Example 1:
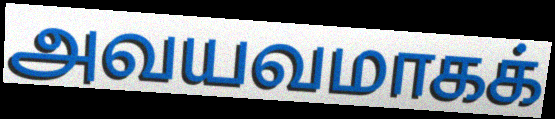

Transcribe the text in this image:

அவயவமாகக்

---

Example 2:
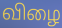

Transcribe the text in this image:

விழை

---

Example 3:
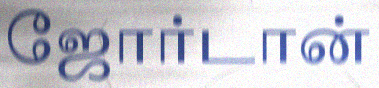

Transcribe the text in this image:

ஜோர்டான்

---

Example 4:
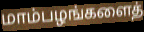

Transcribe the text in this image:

மாம்பழங்களைத்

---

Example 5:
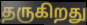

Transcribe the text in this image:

தருகிறது